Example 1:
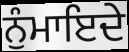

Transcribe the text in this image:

ਨੁੰਮਾਇਦੇ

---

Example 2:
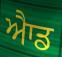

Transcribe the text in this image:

ਐਾਡ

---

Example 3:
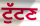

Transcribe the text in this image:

ਟੁੱਟਣ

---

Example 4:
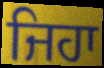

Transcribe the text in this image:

ਜਿਹਾ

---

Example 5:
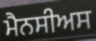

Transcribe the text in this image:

ਮੈਨਸੀਅਸ